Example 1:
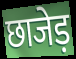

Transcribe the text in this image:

छाजेड़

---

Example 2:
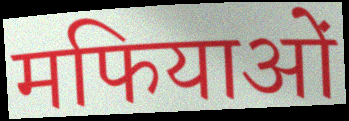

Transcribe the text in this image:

मफियाओं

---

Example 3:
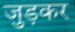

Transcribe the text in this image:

जुड़कर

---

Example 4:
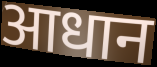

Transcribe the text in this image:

आधान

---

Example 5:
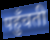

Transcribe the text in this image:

पहुँचती